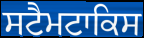
ਸਟੈਮਟਾਕਿਸ